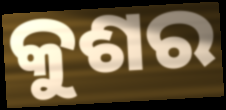
କୁଶର